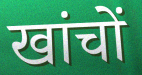
खांचों